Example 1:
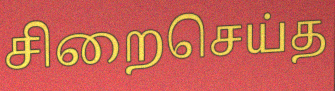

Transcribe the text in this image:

சிறைசெய்த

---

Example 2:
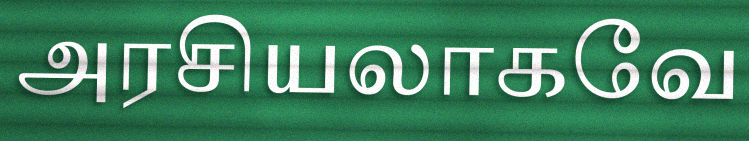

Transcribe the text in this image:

அரசியலாகவே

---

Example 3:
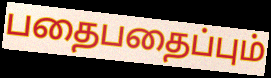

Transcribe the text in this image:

பதைபதைப்பும்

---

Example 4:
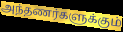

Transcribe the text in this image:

அந்தணர்களுக்கும்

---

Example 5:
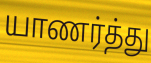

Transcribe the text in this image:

யாணர்த்து